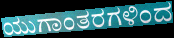
ಯುಗಾಂತರಗಳಿಂದ